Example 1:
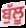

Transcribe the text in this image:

ਬੁੱਲੂ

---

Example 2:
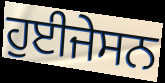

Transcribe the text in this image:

ਹੁਈਜੇਸਨ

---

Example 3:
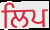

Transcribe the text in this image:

ਲਿਪ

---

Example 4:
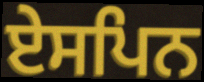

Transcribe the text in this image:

ਏਸਪਿਨ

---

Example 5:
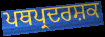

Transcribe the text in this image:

ਪਥਪ੍ਰਦਰਸ਼ਕ